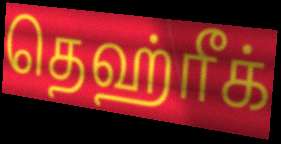
தெஹ்ரீக்